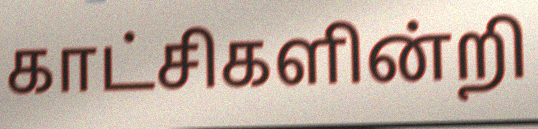
காட்சிகளின்றி